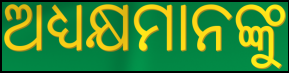
ଅଧ୍ୟକ୍ଷମାନଙ୍କୁ